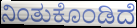
ನಿಂತುಕೊಂಡಿದೆ